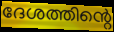
ദേശത്തിന്റെ